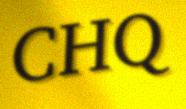
CHQ